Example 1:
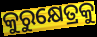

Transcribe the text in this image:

କୁରୁକ୍ଷେତ୍ରକୁ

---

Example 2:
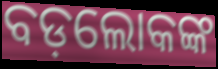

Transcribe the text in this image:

ବଡ଼ଲୋକଙ୍କ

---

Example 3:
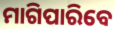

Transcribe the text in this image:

ମାଗିପାରିବେ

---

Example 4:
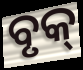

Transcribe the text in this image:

ବୃକ୍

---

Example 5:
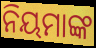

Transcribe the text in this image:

ନିୟମାଙ୍କ